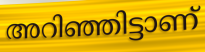
അറിഞ്ഞിട്ടാണ്